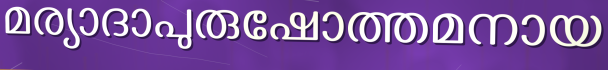
മര്യാദാപുരുഷോത്തമനായ